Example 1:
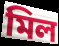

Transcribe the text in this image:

মিল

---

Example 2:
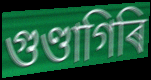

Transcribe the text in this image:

গুণ্ডাগিৰি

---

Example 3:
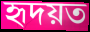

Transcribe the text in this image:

হৃদয়ত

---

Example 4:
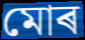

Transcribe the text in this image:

মোৰ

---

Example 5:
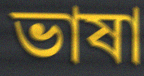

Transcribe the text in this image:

ভাষা